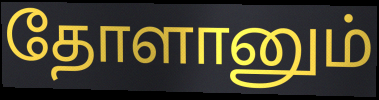
தோளானும்